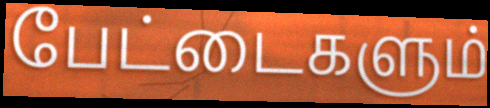
பேட்டைகளும்